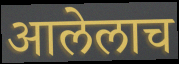
आलेलाच